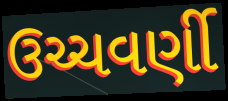
ઉચ્ચવર્ણી